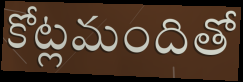
కోట్లమందితో